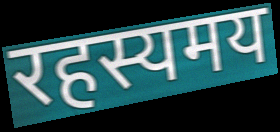
रहस्यमय